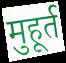
मुहूर्त